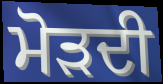
ਮੋੜਦੀ